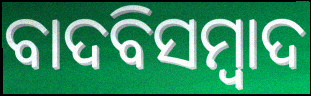
ବାଦବିସମ୍ବାଦ